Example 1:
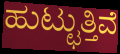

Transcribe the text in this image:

ಹುಟ್ಟುತ್ತಿವೆ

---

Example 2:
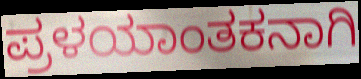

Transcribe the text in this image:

ಪ್ರಳಯಾಂತಕನಾಗಿ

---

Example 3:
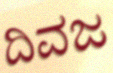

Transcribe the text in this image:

ದಿವಜ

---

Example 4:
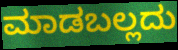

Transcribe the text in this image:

ಮಾಡಬಲ್ಲದು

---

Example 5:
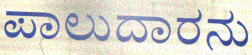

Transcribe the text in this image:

ಪಾಲುದಾರನು